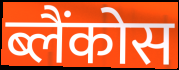
ब्लैंकोस